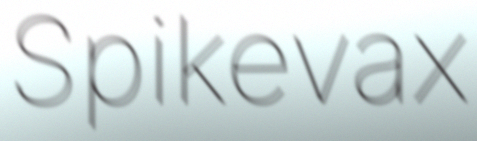
Spikevax